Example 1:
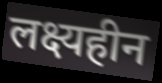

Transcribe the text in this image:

लक्ष्यहीन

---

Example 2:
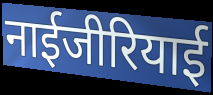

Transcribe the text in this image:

नाईजीरियाई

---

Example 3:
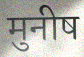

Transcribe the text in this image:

मुनीष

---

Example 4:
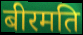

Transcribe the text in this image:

बीरमति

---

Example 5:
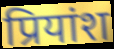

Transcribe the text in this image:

प्रियांश